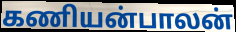
கணியன்பாலன்